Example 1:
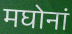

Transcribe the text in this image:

मघोनां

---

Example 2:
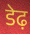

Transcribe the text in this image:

डेढ़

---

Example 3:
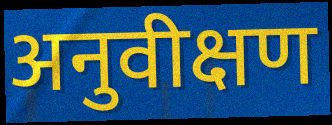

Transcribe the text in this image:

अनुवीक्षण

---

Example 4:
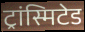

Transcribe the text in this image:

ट्रांस्मिटेड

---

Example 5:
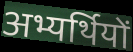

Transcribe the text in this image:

अभ्यर्थियों